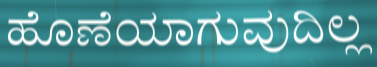
ಹೊಣೆಯಾಗುವುದಿಲ್ಲ